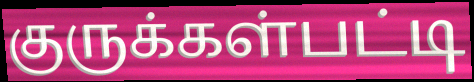
குருக்கள்பட்டி